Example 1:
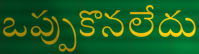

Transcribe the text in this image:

ఒప్పుకొనలేదు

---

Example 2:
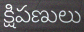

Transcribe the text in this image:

క్షిపణులు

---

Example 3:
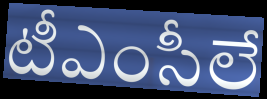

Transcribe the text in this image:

టీఎంసీలే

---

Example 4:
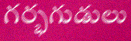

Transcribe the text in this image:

గర్భగుడులు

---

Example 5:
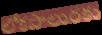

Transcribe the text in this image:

లోకపాలురకు